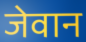
जेवान